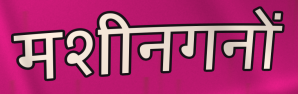
मशीनगनों